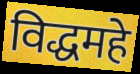
विद्धमहे